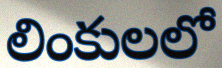
లింకులలో